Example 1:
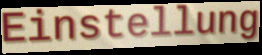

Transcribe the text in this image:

Einstellung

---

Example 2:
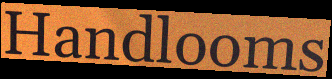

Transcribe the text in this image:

Handlooms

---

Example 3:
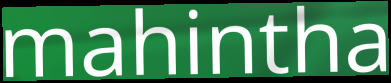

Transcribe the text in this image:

mahintha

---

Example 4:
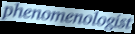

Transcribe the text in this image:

phenomenologist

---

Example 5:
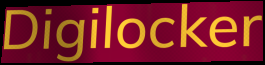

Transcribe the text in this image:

Digilocker